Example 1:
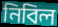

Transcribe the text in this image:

নিবিল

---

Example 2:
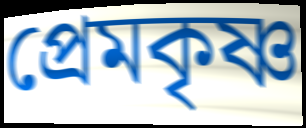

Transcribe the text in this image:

প্রেমকৃষ্ণ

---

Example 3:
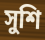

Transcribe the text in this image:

সুশি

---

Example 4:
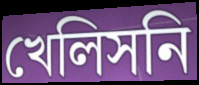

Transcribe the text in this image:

খেলিসনি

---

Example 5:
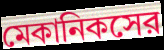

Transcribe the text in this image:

মেকানিকসের